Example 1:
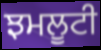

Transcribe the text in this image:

ਝਮਲੂਟੀ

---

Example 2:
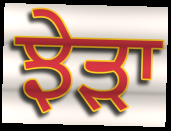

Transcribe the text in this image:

ਝੇੜਾ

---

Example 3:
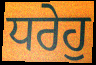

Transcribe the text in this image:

ਧਰੇਹੁ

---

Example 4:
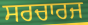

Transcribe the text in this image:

ਸਰਚਾਰਜ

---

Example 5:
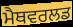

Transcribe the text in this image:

ਮੈਥਵਰਲਡ